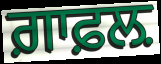
ਗ਼ਾਫ਼ਲ਼